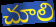
చూలి